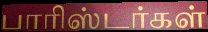
பாரிஸ்டர்கள்